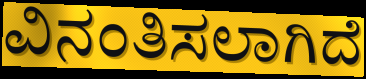
ವಿನಂತಿಸಲಾಗಿದೆ